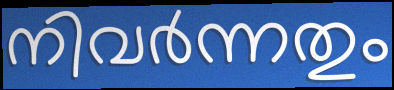
നിവർന്നതും